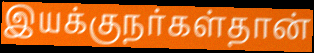
இயக்குநர்கள்தான்